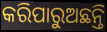
କରିପାରୁଅଛନ୍ତି